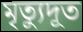
মৃত্যুদূত